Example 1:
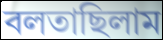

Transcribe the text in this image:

বলতাছিলাম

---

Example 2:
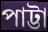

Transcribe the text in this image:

পাট্টা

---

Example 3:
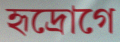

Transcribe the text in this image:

হৃদ্রোগে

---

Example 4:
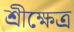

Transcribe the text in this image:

শ্রীক্ষেত্র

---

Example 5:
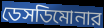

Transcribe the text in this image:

ডেসডিমোনার